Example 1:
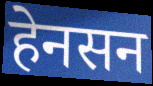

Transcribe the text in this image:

हेनसन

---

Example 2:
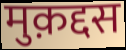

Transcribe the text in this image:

मुक़द्दस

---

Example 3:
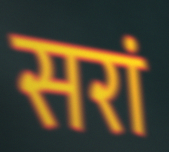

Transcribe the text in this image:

सरां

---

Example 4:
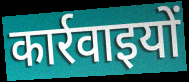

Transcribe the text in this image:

कार्रवाइयों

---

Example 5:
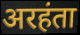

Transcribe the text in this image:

अरहंता